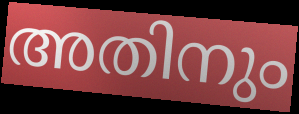
അതിനും